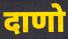
दाणो